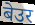
बेउर